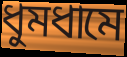
ধুমধামে